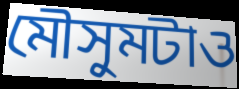
মৌসুমটাও